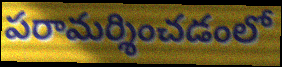
పరామర్శించడంలో